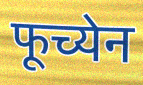
फूच्येन